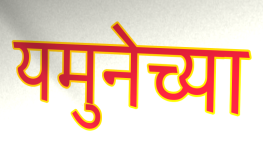
यमुनेच्या